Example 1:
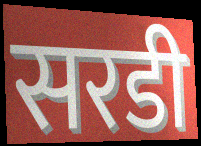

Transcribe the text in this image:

सरडी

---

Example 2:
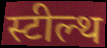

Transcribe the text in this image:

स्टील्थ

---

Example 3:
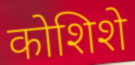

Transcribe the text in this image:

कोशिशे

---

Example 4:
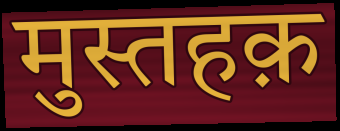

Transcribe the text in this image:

मुस्तहक़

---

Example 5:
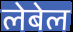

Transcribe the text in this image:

लेबेल